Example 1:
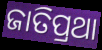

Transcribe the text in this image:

ଜାତିପ୍ରଥା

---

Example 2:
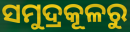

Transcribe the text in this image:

ସମୁଦ୍ରକୂଳରୁ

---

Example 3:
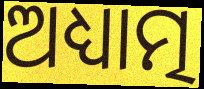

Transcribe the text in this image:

ଅଧ୍ୟାତ୍ମ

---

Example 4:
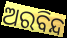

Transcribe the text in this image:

ଅରବିନ୍ଦ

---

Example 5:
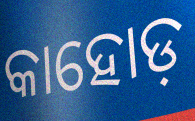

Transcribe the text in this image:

କାହୋଡ଼